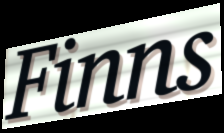
Finns